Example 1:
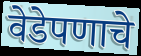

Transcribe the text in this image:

वेडेपणाचे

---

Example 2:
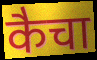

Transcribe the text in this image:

कैचा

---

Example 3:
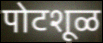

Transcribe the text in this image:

पोटशूळ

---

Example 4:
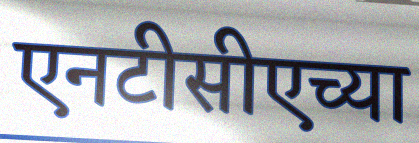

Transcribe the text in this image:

एनटीसीएच्या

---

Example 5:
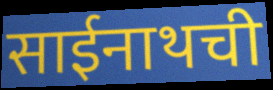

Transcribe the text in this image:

साईनाथची